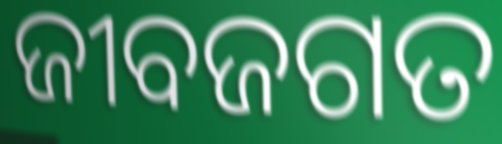
ଜୀବଜଗତ